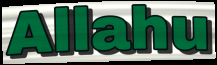
Allahu